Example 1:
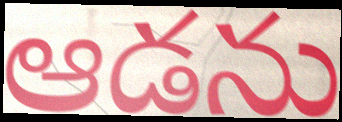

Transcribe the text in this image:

ఆడను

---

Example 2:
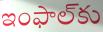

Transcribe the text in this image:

ఇంఫాల్‌కు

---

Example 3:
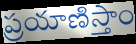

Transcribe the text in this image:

ప్రయాణిస్తాం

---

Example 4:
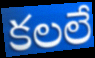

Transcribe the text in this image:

కలలే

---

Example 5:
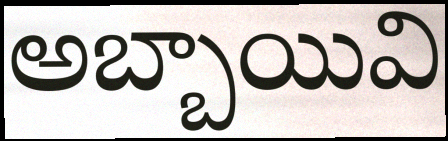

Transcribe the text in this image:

అబ్బాయివి